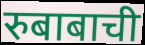
रुबाबाची